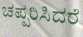
ಚಪ್ಪರಿಸಿದರೆ